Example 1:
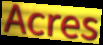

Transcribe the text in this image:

Acres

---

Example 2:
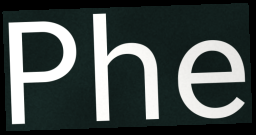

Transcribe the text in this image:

Phe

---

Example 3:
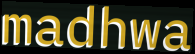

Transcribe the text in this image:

madhwa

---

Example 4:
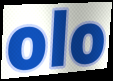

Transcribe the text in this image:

olo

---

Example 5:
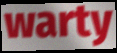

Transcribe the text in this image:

warty